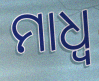
ମାଧ୍ଵ